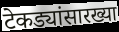
टेकड्यांसारख्या